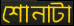
শোনাটা